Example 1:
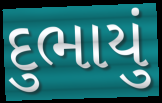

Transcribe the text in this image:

દુભાયું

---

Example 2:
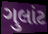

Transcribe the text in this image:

ગુલાંટ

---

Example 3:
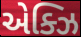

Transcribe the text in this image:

એક્ઝિ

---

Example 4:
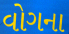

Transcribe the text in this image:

વોગના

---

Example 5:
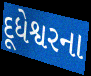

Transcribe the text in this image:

દૂધેશ્વરના